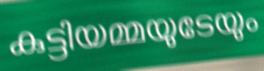
കുട്ടിയമ്മയുടേയും